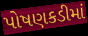
પોષણકડીમાં